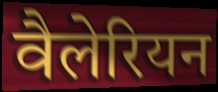
वैलेरियन